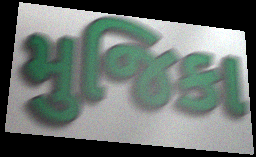
મુજિકા